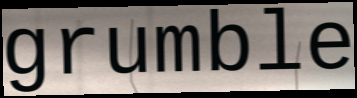
grumble